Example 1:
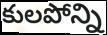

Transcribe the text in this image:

కులపోన్ని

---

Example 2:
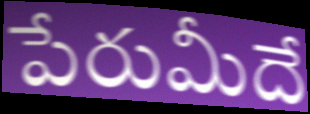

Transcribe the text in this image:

పేరుమీదే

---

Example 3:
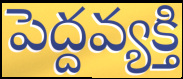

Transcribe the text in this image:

పెద్దవ్యక్తి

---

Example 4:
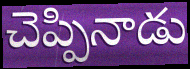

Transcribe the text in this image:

చెప్పినాడు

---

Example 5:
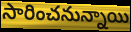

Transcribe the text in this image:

సారించనున్నాయి